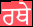
ਰਥੇ